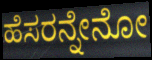
ಹೆಸರನ್ನೇನೋ